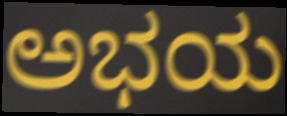
ಅಭಯ